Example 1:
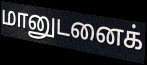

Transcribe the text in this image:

மானுடனைக்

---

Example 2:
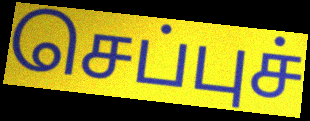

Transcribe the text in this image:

செப்புச்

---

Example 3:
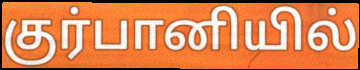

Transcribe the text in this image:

குர்பானியில்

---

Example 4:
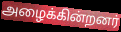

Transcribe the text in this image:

அழைக்கின்றனர்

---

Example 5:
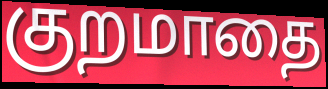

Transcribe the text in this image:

குறமாதை